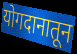
योगदानातून